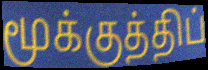
மூக்குத்திப்